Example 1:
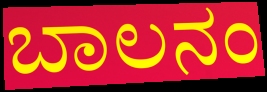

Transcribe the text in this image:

ಬಾಲನಂ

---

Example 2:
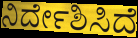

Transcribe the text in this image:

ನಿರ್ದೇಶಿಸಿದೆ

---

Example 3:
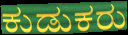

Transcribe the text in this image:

ಕುಡುಕರು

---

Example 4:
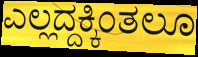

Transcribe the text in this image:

ಎಲ್ಲದ್ದಕ್ಕಿಂತಲೂ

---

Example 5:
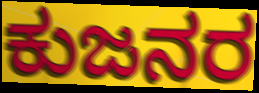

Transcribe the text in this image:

ಕುಜನರ